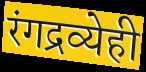
रंगद्रव्येही